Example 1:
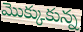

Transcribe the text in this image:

మొక్కుకున్న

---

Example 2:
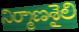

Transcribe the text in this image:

నిర్మాణశైలి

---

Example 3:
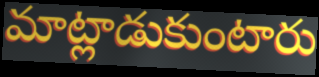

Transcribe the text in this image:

మాట్లాడుకుంటారు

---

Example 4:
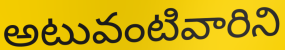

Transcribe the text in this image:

అటువంటివారిని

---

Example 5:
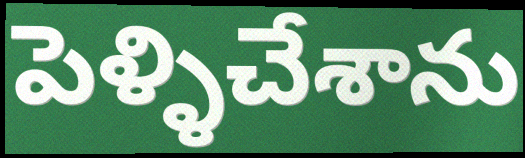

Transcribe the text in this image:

పెళ్ళిచేశాను